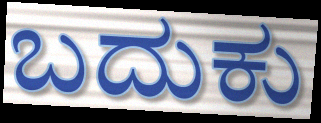
ಬದುಕು